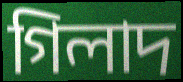
গিলাদ